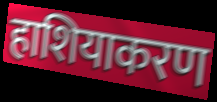
हाशियाकरण